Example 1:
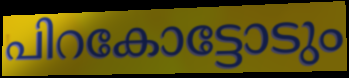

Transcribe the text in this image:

പിറകോട്ടോടും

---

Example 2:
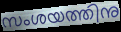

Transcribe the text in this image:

സംശയത്തിനു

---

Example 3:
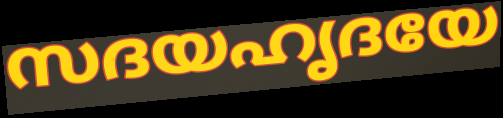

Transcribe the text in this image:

സദയഹൃദയേ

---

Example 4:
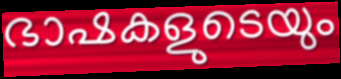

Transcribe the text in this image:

ഭാഷകളുടെയും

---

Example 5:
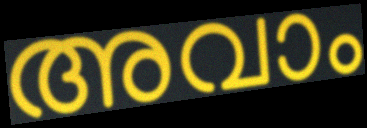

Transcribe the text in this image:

അവാം